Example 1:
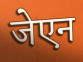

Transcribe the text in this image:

जेएन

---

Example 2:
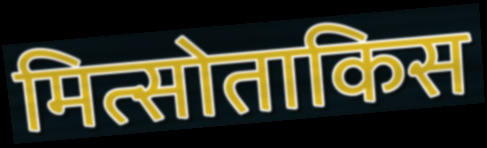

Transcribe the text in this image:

मित्सोताकिस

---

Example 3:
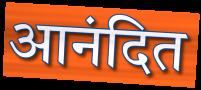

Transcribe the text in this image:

आनंदित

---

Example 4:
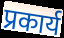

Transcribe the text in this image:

प्रकार्य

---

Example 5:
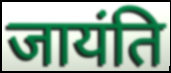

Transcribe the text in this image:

जायंति